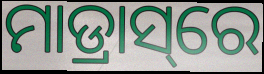
ମାଡ୍ରାସ୍‌ରେ